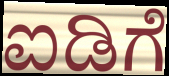
ಐಡಿಗೆ